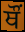
ਥੌਂ